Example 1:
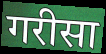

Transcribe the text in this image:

गरीसा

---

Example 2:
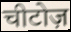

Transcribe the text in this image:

चीटोज़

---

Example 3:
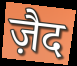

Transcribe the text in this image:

ज़ैद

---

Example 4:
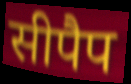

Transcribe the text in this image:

सीपैप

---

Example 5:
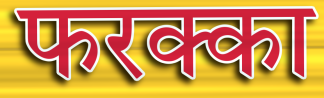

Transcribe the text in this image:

फरक्का